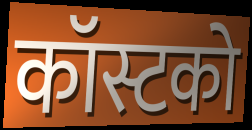
कॉस्टको